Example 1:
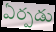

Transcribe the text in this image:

ఏర్పడు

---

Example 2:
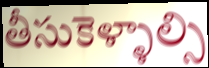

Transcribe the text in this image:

తీసుకెళ్ళాల్సి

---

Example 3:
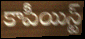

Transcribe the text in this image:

కాపీయిస్ట్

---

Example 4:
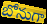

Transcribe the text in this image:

బోనుగా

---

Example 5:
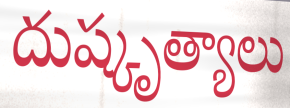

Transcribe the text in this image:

దుష్కృత్యాలు